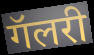
गॅलरी